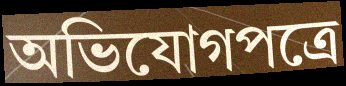
অভিযোগপত্রে